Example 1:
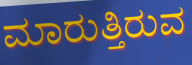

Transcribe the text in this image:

ಮಾರುತ್ತಿರುವ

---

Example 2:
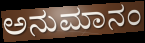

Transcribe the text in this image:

ಅನುಮಾನಂ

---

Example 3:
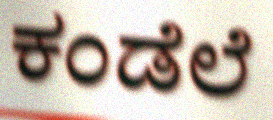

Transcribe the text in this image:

ಕಂಡೆಲೆ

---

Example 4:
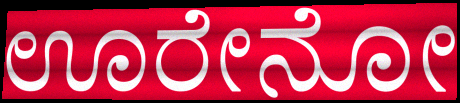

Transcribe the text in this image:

ಊರೇನೋ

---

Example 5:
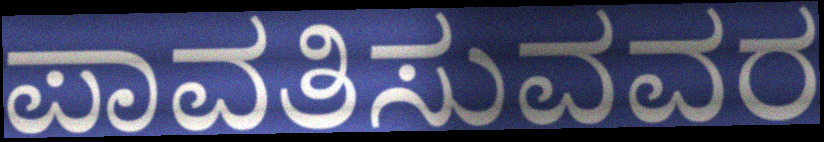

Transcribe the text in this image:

ಪಾವತಿಸುವವರ